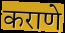
कराणे